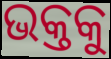
ଭକ୍ତକୁ